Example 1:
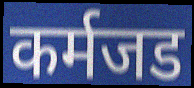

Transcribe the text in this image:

कर्मजड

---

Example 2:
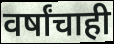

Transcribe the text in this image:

वर्षांचाही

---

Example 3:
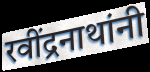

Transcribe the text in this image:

रवींद्रनाथांनी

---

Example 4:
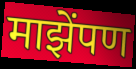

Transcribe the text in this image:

माझेंपण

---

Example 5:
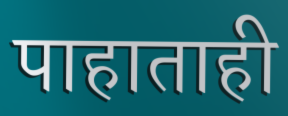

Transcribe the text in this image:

पाहाताही